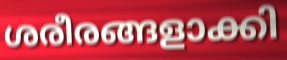
ശരീരങ്ങളാക്കി